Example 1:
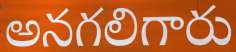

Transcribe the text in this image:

అనగలిగారు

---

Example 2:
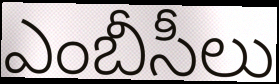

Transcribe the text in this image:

ఎంబీసీలు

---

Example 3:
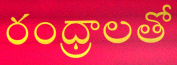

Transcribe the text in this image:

రంధ్రాలతో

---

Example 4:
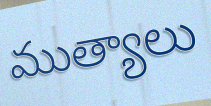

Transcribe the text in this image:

ముత్యాలు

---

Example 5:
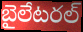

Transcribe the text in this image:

బైలేటరల్